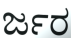
ರ್ಜರ